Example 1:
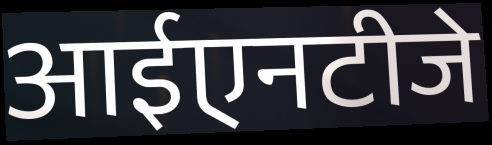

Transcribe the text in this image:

आईएनटीजे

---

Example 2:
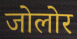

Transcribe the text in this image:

जोलोर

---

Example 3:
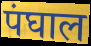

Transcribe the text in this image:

पंघाल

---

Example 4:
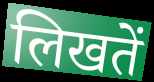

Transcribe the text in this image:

लिखतें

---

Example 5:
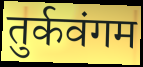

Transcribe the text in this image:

तुर्कवंगम